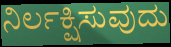
ನಿರ್ಲಕ್ಷಿಸುವುದು